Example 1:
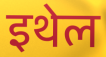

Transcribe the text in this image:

इथेल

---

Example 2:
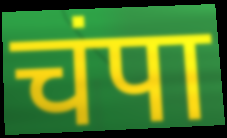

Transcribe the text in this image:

चंपा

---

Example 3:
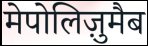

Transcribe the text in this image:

मेपोलिज़ुमैब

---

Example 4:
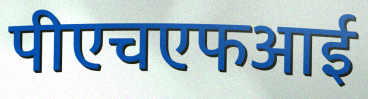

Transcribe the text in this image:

पीएचएफआई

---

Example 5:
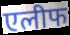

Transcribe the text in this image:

एलीफ